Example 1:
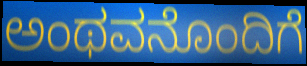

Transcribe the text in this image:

ಅಂಥವನೊಂದಿಗೆ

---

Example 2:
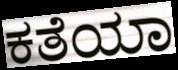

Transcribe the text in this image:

ಕತೆಯಾ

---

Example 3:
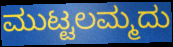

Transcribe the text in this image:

ಮುಟ್ಟಲಮ್ಮದು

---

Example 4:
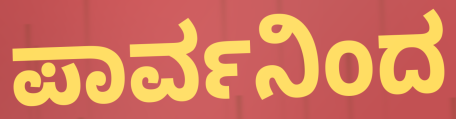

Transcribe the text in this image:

ಪಾರ್ವನಿಂದ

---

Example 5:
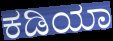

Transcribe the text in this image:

ಕಡಿಯಾ